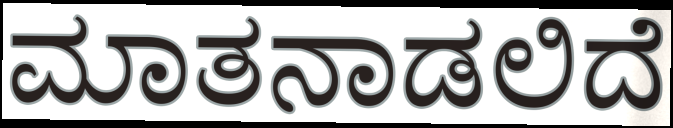
ಮಾತನಾಡಲಿದೆ